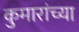
कुमारांच्या